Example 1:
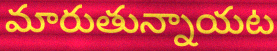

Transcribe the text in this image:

మారుతున్నాయట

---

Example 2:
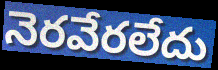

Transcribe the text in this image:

నెరవేరలేదు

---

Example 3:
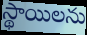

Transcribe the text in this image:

స్థాయిలను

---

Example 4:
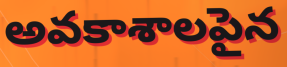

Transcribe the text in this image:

అవకాశాలపైన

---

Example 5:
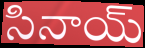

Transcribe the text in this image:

సినాయ్